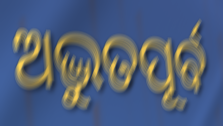
ଅଦ୍ଭୁତପୂର୍ବ